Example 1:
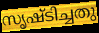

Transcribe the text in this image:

സൃഷ്ടിച്ചതു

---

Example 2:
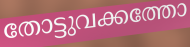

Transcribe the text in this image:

തോട്ടുവക്കത്തോ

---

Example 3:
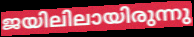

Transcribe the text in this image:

ജയിലിലായിരുന്നു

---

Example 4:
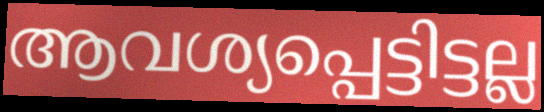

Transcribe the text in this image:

ആവശ്യപ്പെട്ടിട്ടല്ല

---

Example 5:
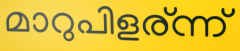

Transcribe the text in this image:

മാറുപിളര്ന്ന്